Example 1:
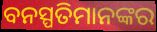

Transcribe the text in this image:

ବନସ୍ପତିମାନଙ୍କର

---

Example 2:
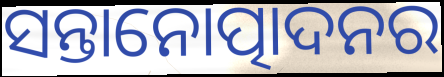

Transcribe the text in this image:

ସନ୍ତାନୋତ୍ପାଦନର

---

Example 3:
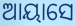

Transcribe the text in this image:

ଆୟାସେ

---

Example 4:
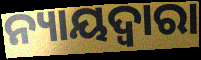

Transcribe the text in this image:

ନ୍ୟାୟଦ୍ୱାରା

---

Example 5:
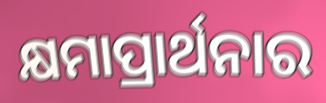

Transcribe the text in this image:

କ୍ଷମାପ୍ରାର୍ଥନାର